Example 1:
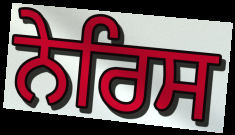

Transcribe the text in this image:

ਨੇਰਿਸ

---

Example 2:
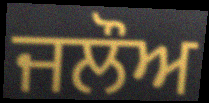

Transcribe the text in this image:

ਜਲੌਅ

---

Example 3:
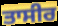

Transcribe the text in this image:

ਤਾਸੀਰ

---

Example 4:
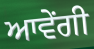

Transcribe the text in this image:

ਆਵੇਂਗੀ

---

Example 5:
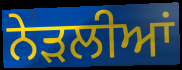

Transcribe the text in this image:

ਨੇੜਲੀਆਂ